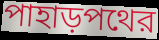
পাহাড়পথের